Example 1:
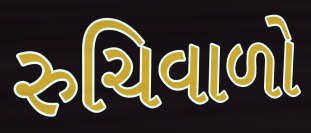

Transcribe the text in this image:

રુચિવાળો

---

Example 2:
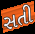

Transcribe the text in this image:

સતી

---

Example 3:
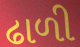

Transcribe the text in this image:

ઢાળી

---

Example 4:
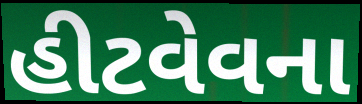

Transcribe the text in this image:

હીટવેવના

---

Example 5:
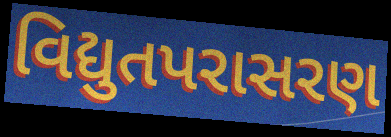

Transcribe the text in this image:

વિદ્યુતપરાસરણ